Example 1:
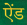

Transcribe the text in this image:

ऐंड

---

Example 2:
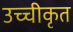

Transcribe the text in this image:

उच्चीकृत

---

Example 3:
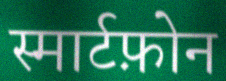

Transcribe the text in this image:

स्मार्टफ़ोन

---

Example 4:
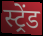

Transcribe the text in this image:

स्ट्रेंड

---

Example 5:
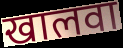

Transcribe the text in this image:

खालवा